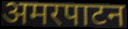
अमरपाटन